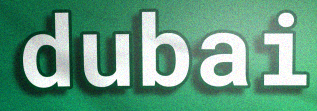
dubai